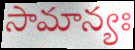
సామాన్యః